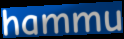
hammu